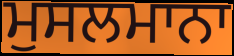
ਮੁਸਲਮਾਨਾ